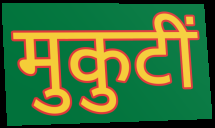
मुकुटीं